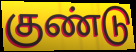
குண்டு